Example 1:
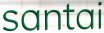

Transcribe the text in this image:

santai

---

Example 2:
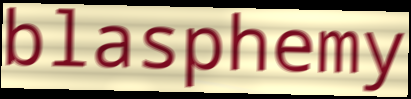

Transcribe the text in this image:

blasphemy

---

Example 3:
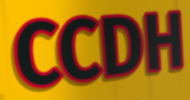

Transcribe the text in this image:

CCDH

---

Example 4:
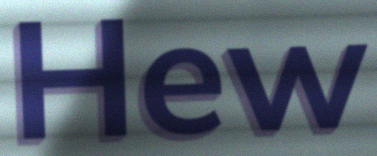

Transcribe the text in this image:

Hew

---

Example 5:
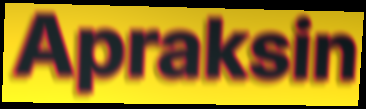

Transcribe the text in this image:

Apraksin